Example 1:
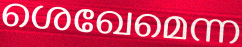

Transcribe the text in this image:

ശെഖേമെന്ന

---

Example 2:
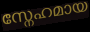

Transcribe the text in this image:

സ്നേഹമായ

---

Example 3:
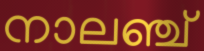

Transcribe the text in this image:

നാലഞ്ച്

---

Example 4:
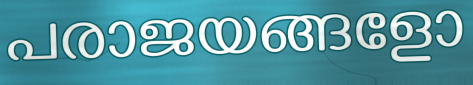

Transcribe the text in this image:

പരാജയങ്ങളോ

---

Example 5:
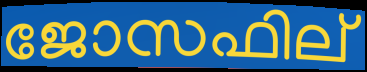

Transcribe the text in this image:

ജോസഫില്